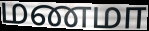
மணமா